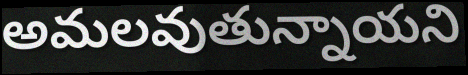
అమలవుతున్నాయని